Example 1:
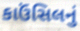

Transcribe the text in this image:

કાઉંસિલનું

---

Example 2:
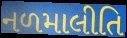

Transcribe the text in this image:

નળમાલીતિ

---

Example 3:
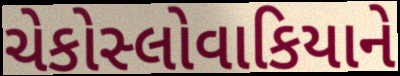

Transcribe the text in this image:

ચેકોસ્લોવાકિયાને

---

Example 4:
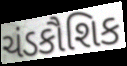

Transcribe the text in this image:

ચંડકૌશિક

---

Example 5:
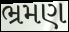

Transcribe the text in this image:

ભ્રમણ